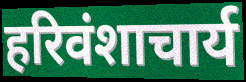
हरिवंशाचार्य